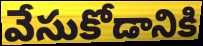
వేసుకోడానికి